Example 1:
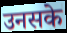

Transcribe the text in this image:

उनसके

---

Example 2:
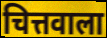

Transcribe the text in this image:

चित्तवाला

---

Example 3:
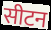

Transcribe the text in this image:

सीटन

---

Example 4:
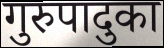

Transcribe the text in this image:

गुरुपादुका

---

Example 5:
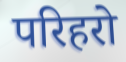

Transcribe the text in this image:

परिहरो